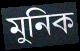
মুনিক